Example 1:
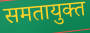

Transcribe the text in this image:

समतायुक्त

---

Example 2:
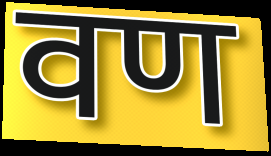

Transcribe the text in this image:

वण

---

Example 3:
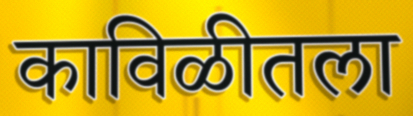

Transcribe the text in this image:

काविळीतला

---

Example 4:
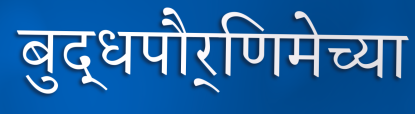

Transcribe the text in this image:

बुद्धपौर्णिमेच्या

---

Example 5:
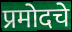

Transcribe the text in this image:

प्रमोदचे